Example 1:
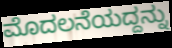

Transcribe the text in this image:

ಮೊದಲನೆಯದ್ದನ್ನು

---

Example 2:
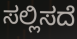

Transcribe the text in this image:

ಸಲ್ಲಿಸದೆ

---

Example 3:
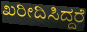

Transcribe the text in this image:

ಖರೀದಿಸಿದ್ದರೆ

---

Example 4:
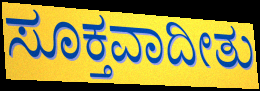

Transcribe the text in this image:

ಸೂಕ್ತವಾದೀತು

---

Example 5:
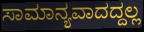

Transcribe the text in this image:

ಸಾಮಾನ್ಯವಾದದ್ದಲ್ಲ